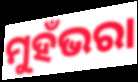
ମୁହଁଭରା